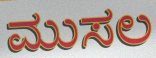
ಮುಸಲ